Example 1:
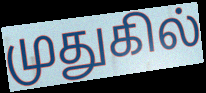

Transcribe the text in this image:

முதுகில்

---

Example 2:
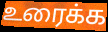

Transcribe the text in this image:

உரைக்க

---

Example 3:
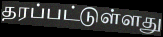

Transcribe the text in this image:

தரப்பட்டுள்ளது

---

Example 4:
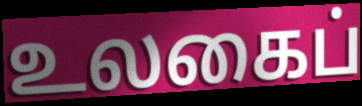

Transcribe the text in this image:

உலகைப்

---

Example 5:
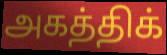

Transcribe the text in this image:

அகத்திக்